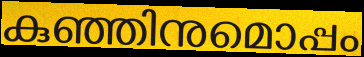
കുഞ്ഞിനുമൊപ്പം